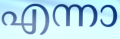
എന്നാ